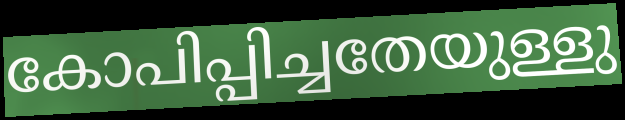
കോപിപ്പിച്ചതേയുള്ളു